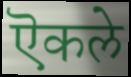
ऎकले